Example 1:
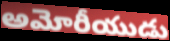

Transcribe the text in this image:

అమోరీయుడు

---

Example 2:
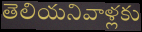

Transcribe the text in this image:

తెలియనివాళ్లకు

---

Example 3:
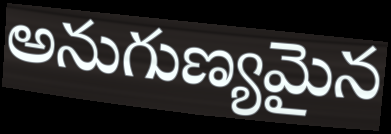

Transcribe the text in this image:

అనుగుణ్యమైన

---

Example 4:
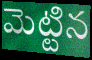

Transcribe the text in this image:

మెట్టిన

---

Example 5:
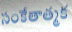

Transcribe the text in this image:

సంకేతాత్మక